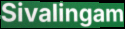
Sivalingam